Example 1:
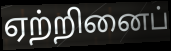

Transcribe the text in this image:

ஏற்றினைப்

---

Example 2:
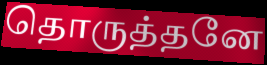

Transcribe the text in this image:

தொருத்தனே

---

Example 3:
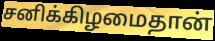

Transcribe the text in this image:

சனிக்கிழமைதான்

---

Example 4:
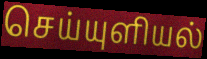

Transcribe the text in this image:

செய்யுளியல்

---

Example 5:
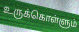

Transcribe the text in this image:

உருக்கொள்ளும்